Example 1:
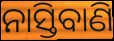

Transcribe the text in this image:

ନାସ୍ତିବାଣି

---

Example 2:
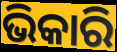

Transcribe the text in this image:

ଭିକାରି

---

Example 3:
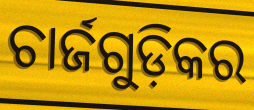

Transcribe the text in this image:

ଚାର୍ଜଗୁଡ଼ିକର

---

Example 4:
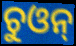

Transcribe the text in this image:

ଚୁଓନ୍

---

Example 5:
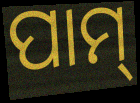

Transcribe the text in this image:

ପାମ୍